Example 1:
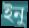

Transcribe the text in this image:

ইনু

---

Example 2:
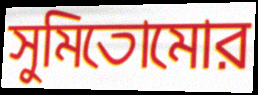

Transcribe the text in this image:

সুমিতোমোর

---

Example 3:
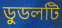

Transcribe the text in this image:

ডুডলটি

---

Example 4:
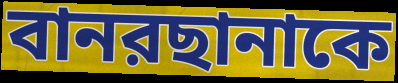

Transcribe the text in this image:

বানরছানাকে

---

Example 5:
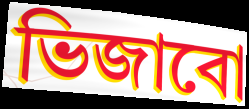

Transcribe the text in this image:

ভিজাবো